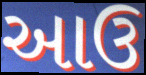
આઉ